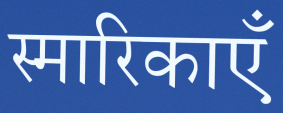
स्मारिकाएँ